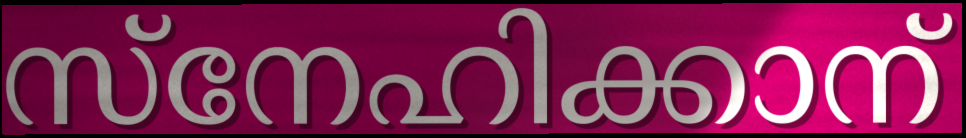
സ്നേഹിക്കാന്